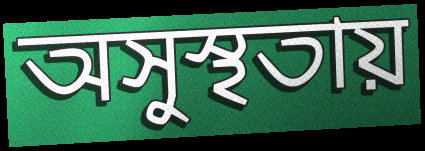
অসুস্থতায়